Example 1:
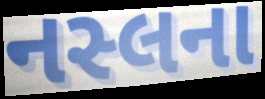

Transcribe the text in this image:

નસ્લના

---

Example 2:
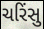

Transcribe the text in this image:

ચરિંસુ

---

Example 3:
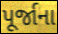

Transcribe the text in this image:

પૂર્જાના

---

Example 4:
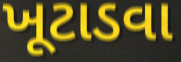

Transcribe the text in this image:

ખૂટાડવા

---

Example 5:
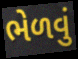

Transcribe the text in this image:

ભેળવું